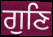
ਗੁਣਿ